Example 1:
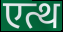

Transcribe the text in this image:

एत्थ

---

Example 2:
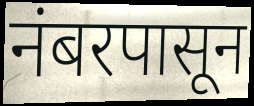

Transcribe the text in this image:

नंबरपासून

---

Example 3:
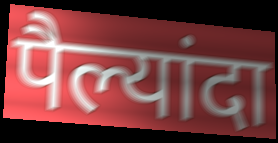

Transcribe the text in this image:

पैल्यांदा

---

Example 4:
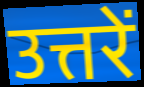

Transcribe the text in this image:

उत्तरें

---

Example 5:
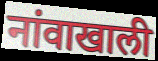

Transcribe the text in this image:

नांवाखाली